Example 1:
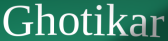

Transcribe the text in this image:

Ghotikar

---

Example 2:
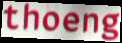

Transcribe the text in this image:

thoeng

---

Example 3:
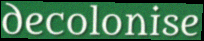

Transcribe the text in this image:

decolonise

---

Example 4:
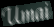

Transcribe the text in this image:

Umai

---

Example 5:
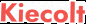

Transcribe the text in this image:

Kiecolt